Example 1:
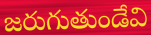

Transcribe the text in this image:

జరుగుతుండేవి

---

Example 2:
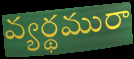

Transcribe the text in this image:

వ్యర్థమురా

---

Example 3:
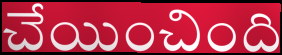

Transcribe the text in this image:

చేయించింది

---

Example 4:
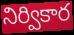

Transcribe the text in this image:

నిర్వికార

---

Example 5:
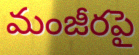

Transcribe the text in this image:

మంజీరపై